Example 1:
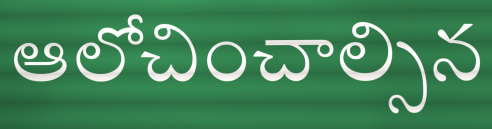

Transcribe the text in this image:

ఆలోచించాల్సిన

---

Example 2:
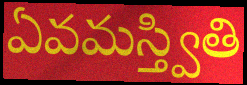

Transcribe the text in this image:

ఏవమస్త్వితి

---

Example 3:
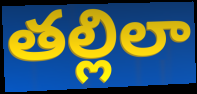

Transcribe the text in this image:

తల్లిలా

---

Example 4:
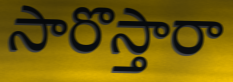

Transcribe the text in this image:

సారొస్తారా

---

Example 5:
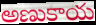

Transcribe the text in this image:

అణుకాయ